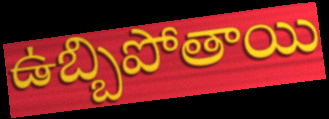
ఉబ్బిపోతాయి